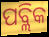
ପବ୍ଲିକ